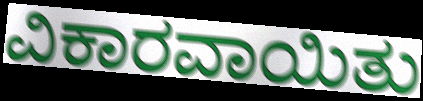
ವಿಕಾರವಾಯಿತು